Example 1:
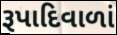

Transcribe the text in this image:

રૂપાદિવાળાં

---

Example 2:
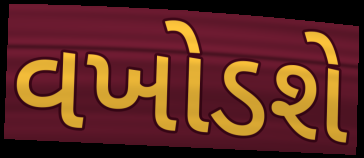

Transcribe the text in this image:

વખોડશે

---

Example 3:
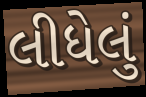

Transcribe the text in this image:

લીધેલું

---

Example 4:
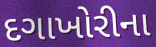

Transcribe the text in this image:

દગાખોરીના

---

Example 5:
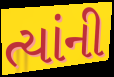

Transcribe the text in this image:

ત્યાંની